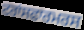
ਟਰਾਂਸਫਾਰਮਰਸ